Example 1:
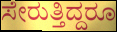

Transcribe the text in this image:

ಸೇರುತ್ತಿದ್ದರೂ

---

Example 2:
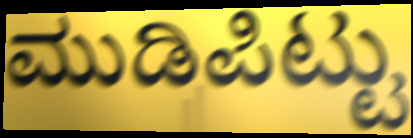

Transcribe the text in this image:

ಮುಡಿಪಿಟ್ಟು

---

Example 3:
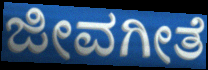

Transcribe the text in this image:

ಜೀವಗೀತೆ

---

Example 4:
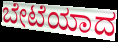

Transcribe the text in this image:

ಬೇಟೆಯಾದ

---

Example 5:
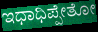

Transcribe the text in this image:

ಇಧಾಧಿಪ್ಪೇತೋ